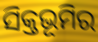
ସିକ୍ତଭୂମିର